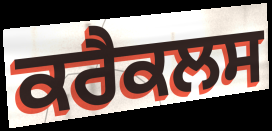
ਕਰੈਕਲਸ